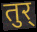
तुर्